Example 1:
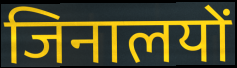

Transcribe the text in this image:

जिनालयों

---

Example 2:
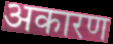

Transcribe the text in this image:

अकारण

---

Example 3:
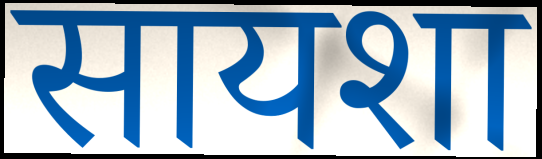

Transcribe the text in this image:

सायशा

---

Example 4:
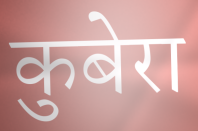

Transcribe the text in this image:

कुबेरा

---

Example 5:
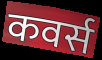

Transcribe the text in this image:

कवर्स